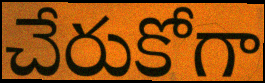
చేరుకోగా